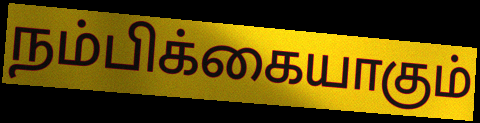
நம்பிக்கையாகும்